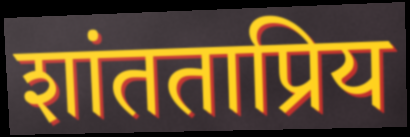
शांतताप्रिय